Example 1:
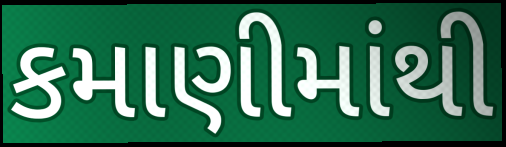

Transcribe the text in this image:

કમાણીમાંથી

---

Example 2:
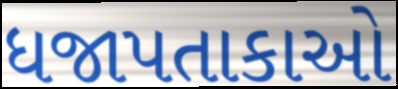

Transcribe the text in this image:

ધજાપતાકાઓ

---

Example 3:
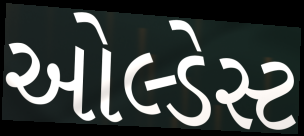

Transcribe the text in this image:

ઓલ્ડેસ્ટ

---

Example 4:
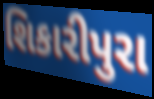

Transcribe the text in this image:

શિકારીપુરા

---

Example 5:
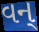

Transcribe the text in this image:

વન્